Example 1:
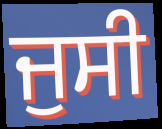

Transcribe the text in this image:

ਜੁਸੀ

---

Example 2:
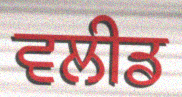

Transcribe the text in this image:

ਵਲੀਡ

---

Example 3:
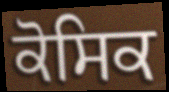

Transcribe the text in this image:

ਕੋਸਿਕ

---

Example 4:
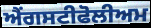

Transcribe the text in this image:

ਐਂਗਸਟੀਫੋਲੀਅਮ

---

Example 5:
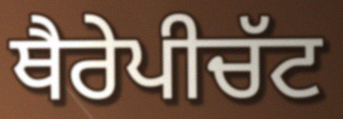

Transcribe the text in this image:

ਥੈਰੇਪੀਚੱਟ